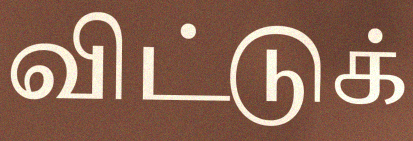
விட்டுக்